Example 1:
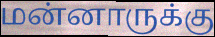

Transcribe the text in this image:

மன்னாருக்கு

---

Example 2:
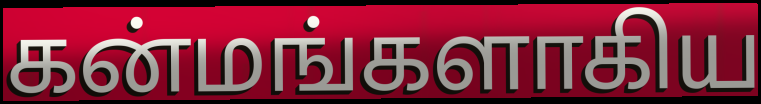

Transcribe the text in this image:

கன்மங்களாகிய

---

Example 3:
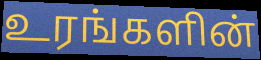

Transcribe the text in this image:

உரங்களின்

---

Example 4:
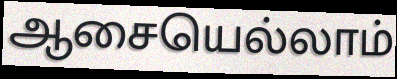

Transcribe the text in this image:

ஆசையெல்லாம்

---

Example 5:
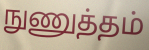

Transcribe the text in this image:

நுணுத்தம்